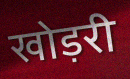
खोड़री